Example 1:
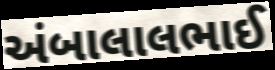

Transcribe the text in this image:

અંબાલાલભાઈ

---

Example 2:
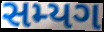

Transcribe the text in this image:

સમ્યગ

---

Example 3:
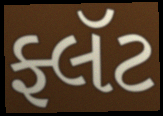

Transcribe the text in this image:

ફ્લૅટ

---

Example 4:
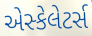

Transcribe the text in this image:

એસ્કેલેટર્સ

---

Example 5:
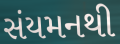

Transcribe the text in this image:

સંયમનથી